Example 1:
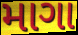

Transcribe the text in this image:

માગા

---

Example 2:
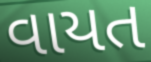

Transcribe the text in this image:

વાયત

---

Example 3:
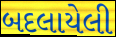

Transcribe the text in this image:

બદલાયેલી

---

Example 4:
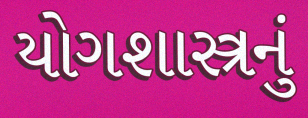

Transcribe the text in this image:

યોગશાસ્ત્રનું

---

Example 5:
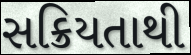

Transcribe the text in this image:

સક્રિયતાથી